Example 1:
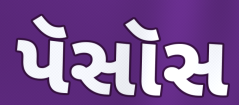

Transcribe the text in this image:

પૅસૉસ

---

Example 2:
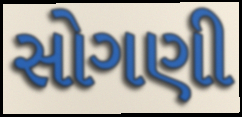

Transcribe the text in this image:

સોગણી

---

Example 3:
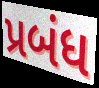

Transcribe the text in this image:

પ્રબંધ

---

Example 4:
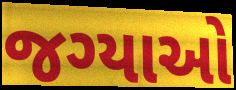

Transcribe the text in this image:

જગ્યાઓ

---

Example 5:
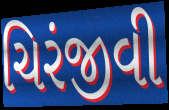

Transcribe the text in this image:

ચિરંજીવી